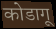
कोडागू